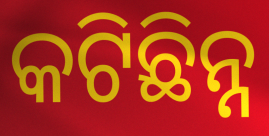
କଟିଛିନ୍ନ